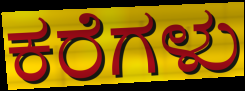
ಕರೆಗಳು